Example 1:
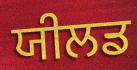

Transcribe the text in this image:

ਯੀਲਡ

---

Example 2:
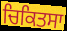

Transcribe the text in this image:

ਚਿਕਿਤਸਾ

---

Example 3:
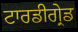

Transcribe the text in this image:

ਟਾਰਡੀਗ੍ਰੇਡ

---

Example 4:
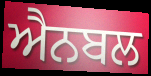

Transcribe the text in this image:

ਐਨਬਲ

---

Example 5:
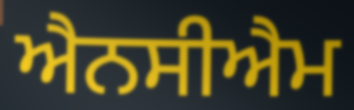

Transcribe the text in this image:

ਐਨਸੀਐਮ